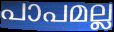
പാപമല്ല